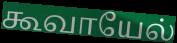
கூவாயேல்